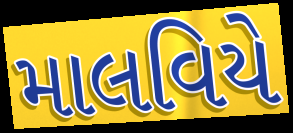
માલવિયે